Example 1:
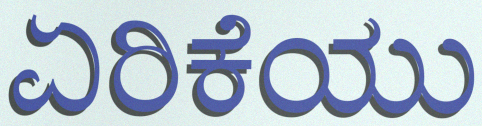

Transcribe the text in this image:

ಏರಿಕೆಯು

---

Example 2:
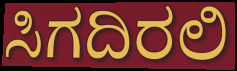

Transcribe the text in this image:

ಸಿಗದಿರಲಿ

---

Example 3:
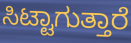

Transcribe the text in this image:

ಸಿಟ್ಟಾಗುತ್ತಾರೆ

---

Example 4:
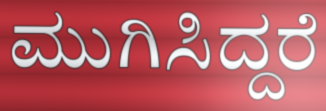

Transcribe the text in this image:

ಮುಗಿಸಿದ್ದರೆ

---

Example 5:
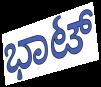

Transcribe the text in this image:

ಭಾಟ್